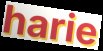
harie